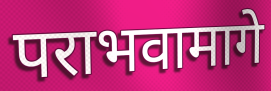
पराभवामागे